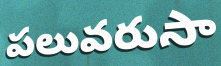
పలువరుసా